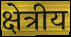
क्षेत्रीय